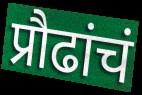
प्रौढांचं